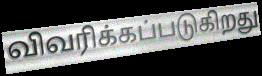
விவரிக்கப்படுகிறது